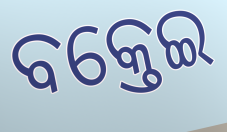
ବକ୍ତେଇ